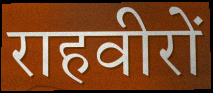
राहवीरों